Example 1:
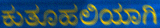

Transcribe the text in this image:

ಕುತೂಹಲಿಯಾಗಿ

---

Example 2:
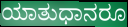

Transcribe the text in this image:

ಯಾತುಧಾನರೂ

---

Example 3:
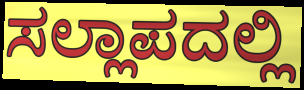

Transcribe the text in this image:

ಸಲ್ಲಾಪದಲ್ಲಿ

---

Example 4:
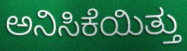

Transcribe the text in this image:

ಅನಿಸಿಕೆಯಿತ್ತು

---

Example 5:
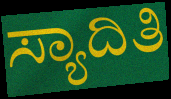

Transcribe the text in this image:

ಸ್ಯಾದಿತಿ